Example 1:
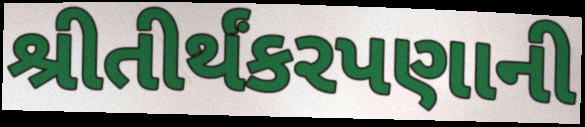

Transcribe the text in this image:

શ્રીતીર્થંકરપણાની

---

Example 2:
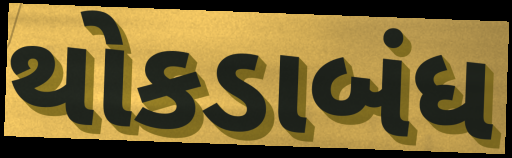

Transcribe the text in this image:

થોકડાબંધ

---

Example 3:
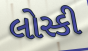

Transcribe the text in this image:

લોસ્કી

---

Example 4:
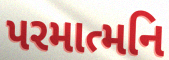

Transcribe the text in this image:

પરમાત્મનિ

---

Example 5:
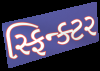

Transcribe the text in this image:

સ્ફિન્ક્ટર